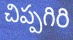
చిప్పగిరి